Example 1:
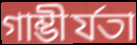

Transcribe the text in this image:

গাম্ভীর্যতা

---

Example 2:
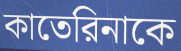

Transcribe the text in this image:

কাতেরিনাকে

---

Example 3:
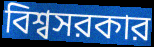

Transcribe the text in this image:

বিশ্বসরকার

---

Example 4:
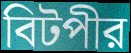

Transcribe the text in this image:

বিটপীর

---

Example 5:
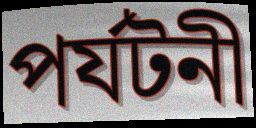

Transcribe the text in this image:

পর্যটনী